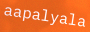
aapalyala